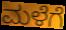
ಮಳೆಗೆ